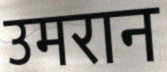
उमरान